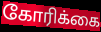
கோரிக்கை